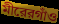
মীরেরগাঁও